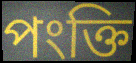
পংক্তি